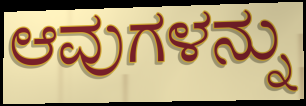
ಆವುಗಳನ್ನು